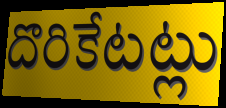
దొరికేటట్లు